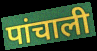
पांचाली